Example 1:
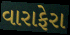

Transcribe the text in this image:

વારાફેરા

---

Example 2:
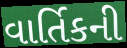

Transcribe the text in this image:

વાર્તિકની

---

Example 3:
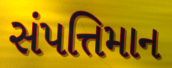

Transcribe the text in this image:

સંપત્તિમાન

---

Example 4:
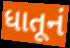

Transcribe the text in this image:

ધાતૂનં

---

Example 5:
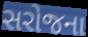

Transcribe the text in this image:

સરોજના